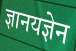
ज्ञानयज्ञेन